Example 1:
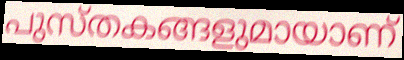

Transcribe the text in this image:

പുസ്തകങ്ങളുമായാണ്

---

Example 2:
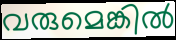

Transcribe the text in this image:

വരുമെങ്കിൽ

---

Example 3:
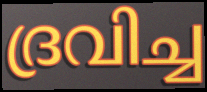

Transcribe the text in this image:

ദ്രവിച്ച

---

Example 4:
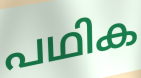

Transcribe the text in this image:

പഥിക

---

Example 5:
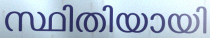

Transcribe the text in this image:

സ്ഥിതിയായി